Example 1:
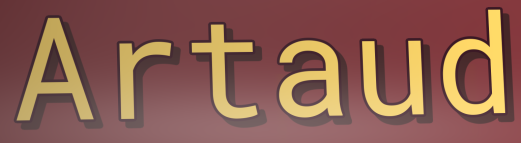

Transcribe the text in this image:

Artaud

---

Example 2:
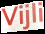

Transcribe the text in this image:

Vijli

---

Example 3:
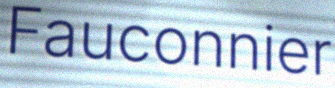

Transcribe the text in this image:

Fauconnier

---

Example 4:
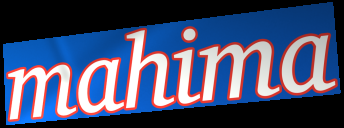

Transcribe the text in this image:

mahima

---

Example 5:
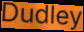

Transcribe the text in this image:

Dudley